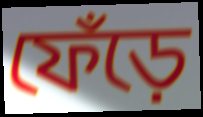
ফেঁড়ে